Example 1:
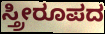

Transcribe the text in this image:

ಸ್ತ್ರೀರೂಪದ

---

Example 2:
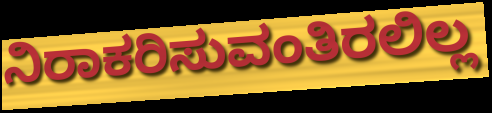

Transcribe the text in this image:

ನಿರಾಕರಿಸುವಂತಿರಲಿಲ್ಲ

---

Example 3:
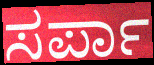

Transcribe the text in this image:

ಸರ್ಪಾ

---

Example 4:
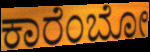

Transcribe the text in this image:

ಕಾರೆಂಬೋ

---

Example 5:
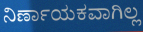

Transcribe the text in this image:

ನಿರ್ಣಾಯಕವಾಗಿಲ್ಲ